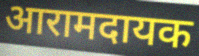
आरामदायक